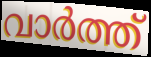
വാർത്ത്